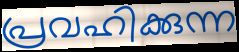
പ്രവഹിക്കുന്ന